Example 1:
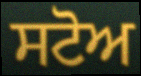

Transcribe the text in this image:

ਸਟੋਅ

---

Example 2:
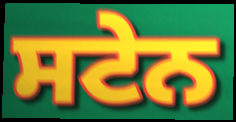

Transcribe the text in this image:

ਸਟੇਨ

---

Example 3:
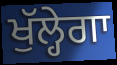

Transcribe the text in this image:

ਖੁੱਲ੍ਹੇਗਾ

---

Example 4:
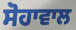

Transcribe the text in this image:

ਸੋਹਾਵਾਲ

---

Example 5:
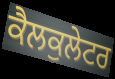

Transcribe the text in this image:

ਕੈਲਕੁਲੇਟਰ